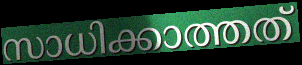
സാധിക്കാത്തത്